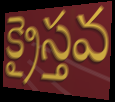
క్రైస్తవ